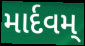
માર્દવમ્